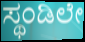
ಸ್ಥಂಡಿಲೇ